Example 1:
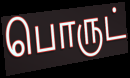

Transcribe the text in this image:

பொருட்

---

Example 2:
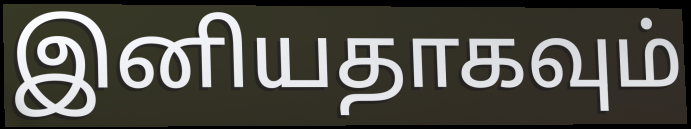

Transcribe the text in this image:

இனியதாகவும்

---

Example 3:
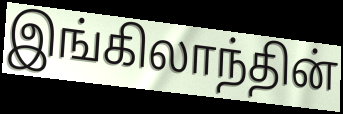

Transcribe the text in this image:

இங்கிலாந்தின்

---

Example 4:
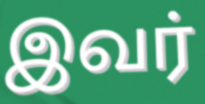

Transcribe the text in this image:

இவர்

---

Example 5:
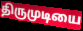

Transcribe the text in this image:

திருமுடியை